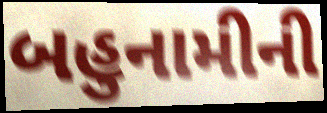
બહુનામીની